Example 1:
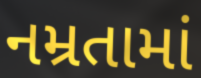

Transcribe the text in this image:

નમ્રતામાં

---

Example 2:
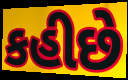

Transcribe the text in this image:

કહીછે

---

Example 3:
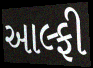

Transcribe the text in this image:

આલ્ફી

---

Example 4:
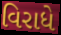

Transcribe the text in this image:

વિરાધે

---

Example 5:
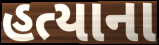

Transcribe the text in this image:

હત્યાના